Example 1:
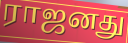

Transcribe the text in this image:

ராஜனது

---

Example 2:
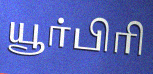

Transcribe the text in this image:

யூர்பிரி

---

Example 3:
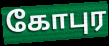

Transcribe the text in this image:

கோபுர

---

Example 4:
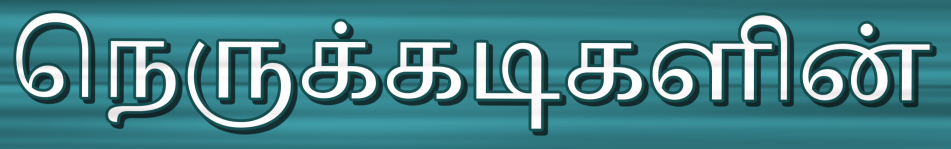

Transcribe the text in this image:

நெருக்கடிகளின்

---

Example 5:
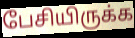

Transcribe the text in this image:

பேசியிருக்க